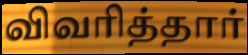
விவரித்தார்